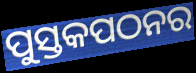
ପୁସ୍ତକପଠନର